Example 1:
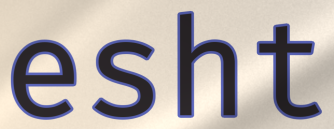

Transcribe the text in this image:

esht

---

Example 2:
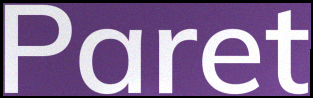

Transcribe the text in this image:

Paret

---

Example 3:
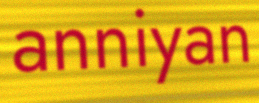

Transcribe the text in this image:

anniyan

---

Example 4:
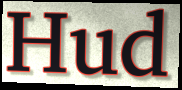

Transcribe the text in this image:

Hud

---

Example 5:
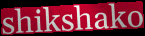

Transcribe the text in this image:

shikshako